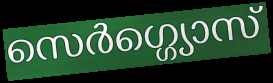
സെർഗ്ഗ്യൊസ്